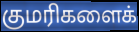
குமரிகளைக்